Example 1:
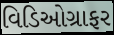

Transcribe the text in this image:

વિડિઓગ્રાફર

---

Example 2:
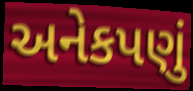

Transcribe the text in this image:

અનેકપણું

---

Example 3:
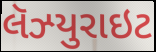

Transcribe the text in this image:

લૅઝ્યુરાઇટ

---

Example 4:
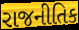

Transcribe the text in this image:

રાજનીતિક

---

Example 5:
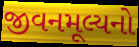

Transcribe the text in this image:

જીવનમૂલ્યનો